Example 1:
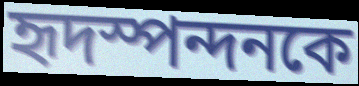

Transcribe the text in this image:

হৃদস্পন্দনকে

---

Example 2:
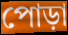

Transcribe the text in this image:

পোড়া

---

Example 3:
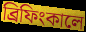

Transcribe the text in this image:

ব্রিফিংকালে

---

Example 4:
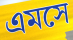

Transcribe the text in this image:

এমসে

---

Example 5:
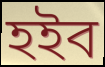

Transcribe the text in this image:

হইব